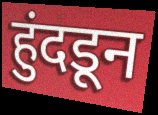
हुंदडून